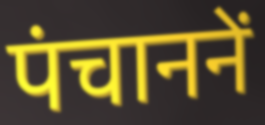
पंचाननें